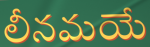
లీనమయే